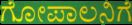
ಗೋಪಾಲನಿಗೆ